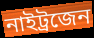
নাইট্ৰজেন